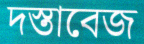
দস্তাবেজ